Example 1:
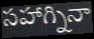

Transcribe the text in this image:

సహాగ్నినా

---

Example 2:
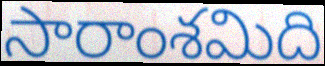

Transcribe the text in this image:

సారాంశమిది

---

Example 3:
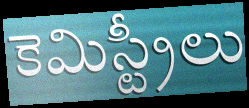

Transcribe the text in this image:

కెమిస్ట్రీలు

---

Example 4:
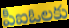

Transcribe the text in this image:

పీఐఓలకు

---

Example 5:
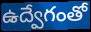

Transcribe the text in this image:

ఉద్వేగంతో